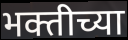
भक्‍तीच्या